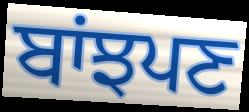
ਬਾਂਝਪਣ